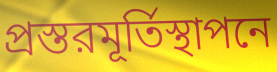
প্রস্তরমূর্তিস্থাপনে